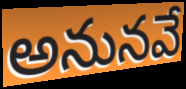
అనునవే